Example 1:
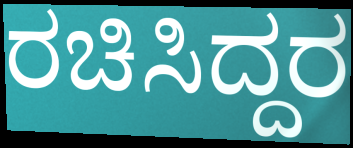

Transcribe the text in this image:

ರಚಿಸಿದ್ದರ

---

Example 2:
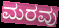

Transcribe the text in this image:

ಮರವು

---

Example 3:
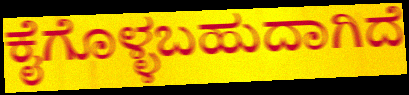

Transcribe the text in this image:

ಕೈಗೊಳ್ಳಬಹುದಾಗಿದೆ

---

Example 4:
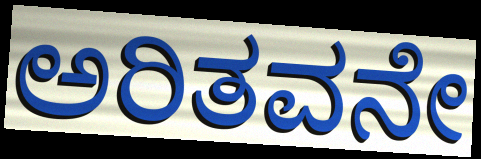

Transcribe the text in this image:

ಅರಿತವನೇ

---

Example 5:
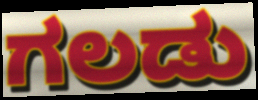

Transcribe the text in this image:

ಗಲಡು